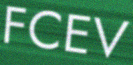
FCEV